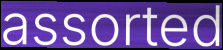
assorted